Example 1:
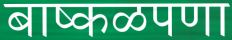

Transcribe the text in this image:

बाष्कळपणा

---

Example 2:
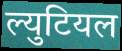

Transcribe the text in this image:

ल्युटियल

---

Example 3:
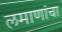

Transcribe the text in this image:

लमाणांचा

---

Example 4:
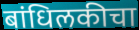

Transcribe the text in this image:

बांधिलकीचा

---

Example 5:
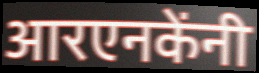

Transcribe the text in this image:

आरएनकेंनी